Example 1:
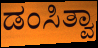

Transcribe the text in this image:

ಡಂಸಿತ್ವಾ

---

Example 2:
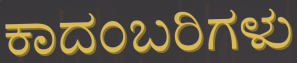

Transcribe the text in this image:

ಕಾದಂಬರಿಗಳು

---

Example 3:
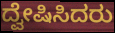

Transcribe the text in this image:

ದ್ವೇಷಿಸಿದರು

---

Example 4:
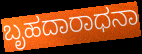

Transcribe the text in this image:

ಬೃಹದಾರಾಧನಾ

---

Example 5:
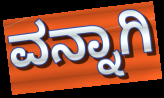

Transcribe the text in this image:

ವನ್ನಾಗಿ